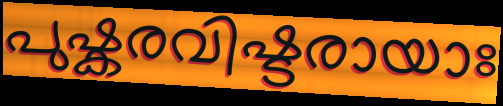
പുഷ്കരവിഷ്ടരായാഃ